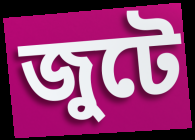
জুটে